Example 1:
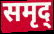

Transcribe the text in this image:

समृद्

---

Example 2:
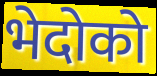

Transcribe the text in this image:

भेदोको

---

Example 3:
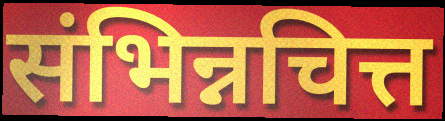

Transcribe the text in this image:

संभिन्नचित्त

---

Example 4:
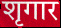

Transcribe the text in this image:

शृगार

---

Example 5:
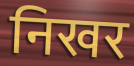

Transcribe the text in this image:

निखर